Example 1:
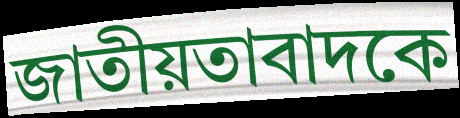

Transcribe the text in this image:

জাতীয়তাবাদকে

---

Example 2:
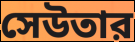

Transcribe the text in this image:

সেউতার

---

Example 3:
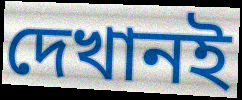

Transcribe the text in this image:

দেখানই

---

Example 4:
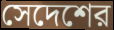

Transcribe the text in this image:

সেদেশের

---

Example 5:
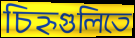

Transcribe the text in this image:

চিহ্নগুলিতে